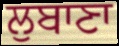
ਲੁਬਾਣਾ